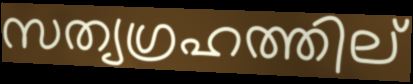
സത്യഗ്രഹത്തില്